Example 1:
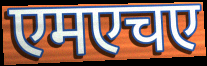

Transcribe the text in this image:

एमएचए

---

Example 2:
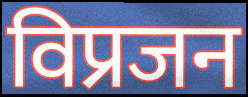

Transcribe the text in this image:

विप्रजन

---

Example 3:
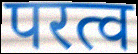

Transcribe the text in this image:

परत्व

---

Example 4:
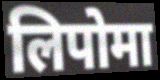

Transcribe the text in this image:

लिपोमा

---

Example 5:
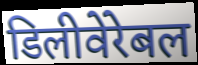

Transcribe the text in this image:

डिलीवेरेबल